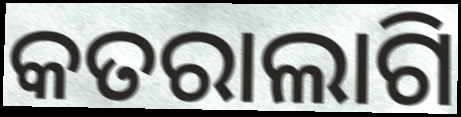
କତରାଲାଗି